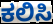
ಕಲಿಸಿ